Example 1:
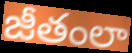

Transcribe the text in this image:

జీతంలా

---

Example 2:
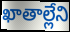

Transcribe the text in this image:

ఖాతాల్లేని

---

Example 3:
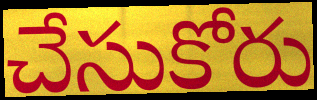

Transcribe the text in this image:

చేసుకోరు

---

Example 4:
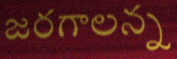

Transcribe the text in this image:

జరగాలన్న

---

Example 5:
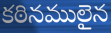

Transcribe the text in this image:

కఠినములైన